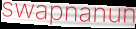
swapnanun